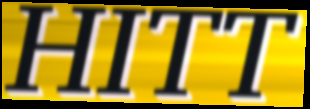
HITT